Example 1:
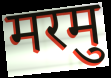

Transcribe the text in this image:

मरमु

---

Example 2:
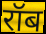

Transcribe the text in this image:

रॉब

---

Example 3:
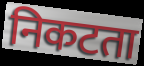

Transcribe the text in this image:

निकटता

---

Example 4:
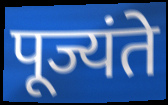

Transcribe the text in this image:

पूज्यंते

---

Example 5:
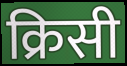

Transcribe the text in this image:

क्रिसी